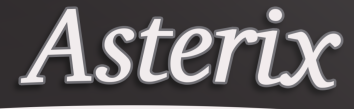
Asterix